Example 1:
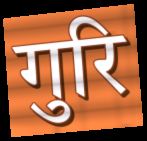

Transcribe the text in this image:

गुरि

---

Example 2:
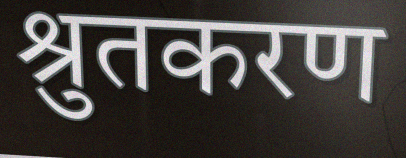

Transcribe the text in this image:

श्रुतकरण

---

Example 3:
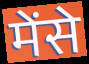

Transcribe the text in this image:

मेंसे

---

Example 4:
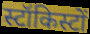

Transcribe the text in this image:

स्टॉकिस्टों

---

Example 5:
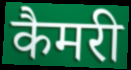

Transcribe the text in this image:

कैमरी